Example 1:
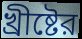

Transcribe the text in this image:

খ্রীষ্টের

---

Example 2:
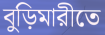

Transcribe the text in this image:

বুড়িমারীতে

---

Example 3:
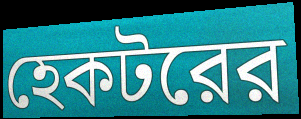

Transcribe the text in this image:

হেকটরের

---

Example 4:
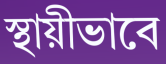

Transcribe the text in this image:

স্থায়ীভাবে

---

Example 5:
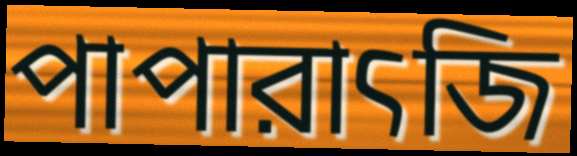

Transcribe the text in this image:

পাপারাৎজি